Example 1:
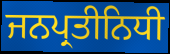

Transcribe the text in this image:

ਜਨਪ੍ਰਤੀਨਿਧੀ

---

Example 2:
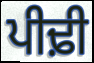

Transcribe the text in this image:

ਪੀਢ਼ੀ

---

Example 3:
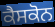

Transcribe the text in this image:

ਕੈਸਕੋਨ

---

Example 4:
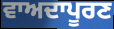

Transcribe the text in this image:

ਵਾਅਦਾਪੂਰਣ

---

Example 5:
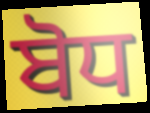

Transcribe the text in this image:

ਬੋਧ